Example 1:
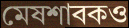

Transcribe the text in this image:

মেষশাবকও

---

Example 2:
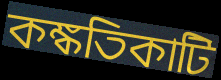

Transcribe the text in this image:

কঙ্কতিকাটি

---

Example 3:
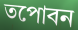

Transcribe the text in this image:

তপোবন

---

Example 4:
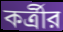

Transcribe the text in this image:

কর্ত্রীর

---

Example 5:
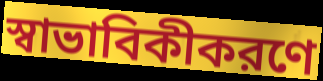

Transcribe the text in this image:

স্বাভাবিকীকরণে